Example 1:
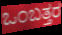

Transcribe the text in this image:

ಒಂಬತ್ತರ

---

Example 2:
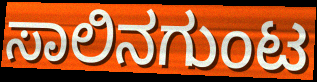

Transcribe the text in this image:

ಸಾಲಿನಗುಂಟ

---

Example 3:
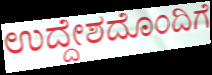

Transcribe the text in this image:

ಉದ್ದೇಶದೊಂದಿಗೆ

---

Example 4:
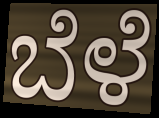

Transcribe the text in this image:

ಬೆಳೆ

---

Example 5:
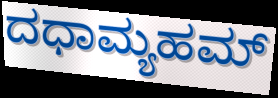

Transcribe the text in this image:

ದಧಾಮ್ಯಹಮ್